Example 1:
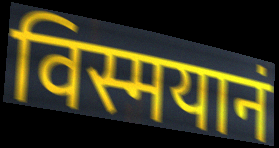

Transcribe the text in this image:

विस्मयानं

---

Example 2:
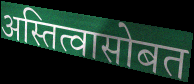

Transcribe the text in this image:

अस्तित्वासोबत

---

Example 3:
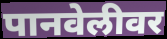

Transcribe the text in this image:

पानवेलीवर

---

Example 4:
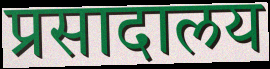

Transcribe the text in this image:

प्रसादालय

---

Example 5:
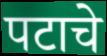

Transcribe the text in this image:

पटाचे